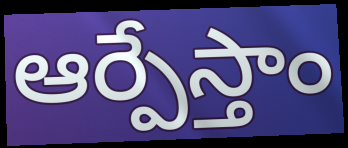
ఆర్పేస్తాం